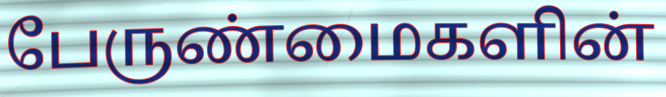
பேருண்மைகளின்